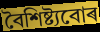
বৈশিষ্ট্যবোৰ